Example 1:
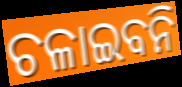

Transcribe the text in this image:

ଚଳାଇବନି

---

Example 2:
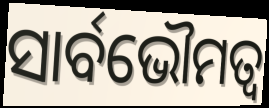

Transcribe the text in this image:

ସାର୍ବଭୌମତ୍ବ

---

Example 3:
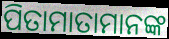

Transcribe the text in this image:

ପିତାମାତାମାନଙ୍କ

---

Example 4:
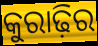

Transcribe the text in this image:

କୁରାଢ଼ିର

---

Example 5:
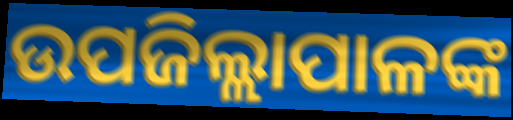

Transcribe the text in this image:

ଉପଜିଲ୍ଲାପାଳଙ୍କ